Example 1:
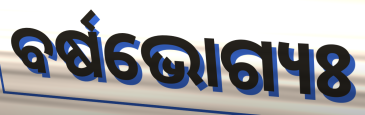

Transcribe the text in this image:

ବର୍ଷଭୋଗ୍ୟଃ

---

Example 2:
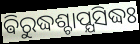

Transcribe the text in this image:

ଵିରୁଦ୍ଧଶ୍ଚାପ୍ଯସିଦ୍ଧଃ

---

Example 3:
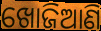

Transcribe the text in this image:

ଖୋଜିଆଣି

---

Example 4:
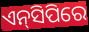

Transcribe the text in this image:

ଏନ୍‌ସିପିରେ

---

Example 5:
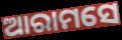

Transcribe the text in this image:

ଆରାମସେ